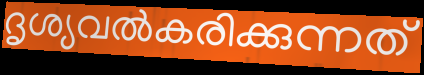
ദൃശ്യവൽകരിക്കുന്നത്